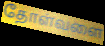
தோள்வளை